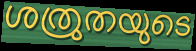
ശത്രുതയുടെ